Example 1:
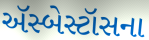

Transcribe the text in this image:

ઍસ્બેસ્ટૉસના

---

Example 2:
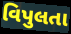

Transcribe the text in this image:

વિપુલતા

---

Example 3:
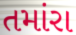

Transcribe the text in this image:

તમાંરા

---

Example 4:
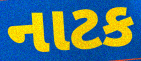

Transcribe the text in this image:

નાટક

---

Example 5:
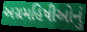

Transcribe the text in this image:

અગ્રમહિષીઓનું